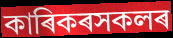
কাৰিকৰসকলৰ